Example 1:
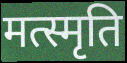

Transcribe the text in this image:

मत्स्मृति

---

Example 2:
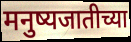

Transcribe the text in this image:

मनुष्यजातीच्या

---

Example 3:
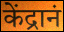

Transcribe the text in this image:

केंद्रानं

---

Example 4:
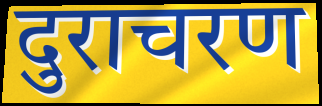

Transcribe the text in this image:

दुराचरण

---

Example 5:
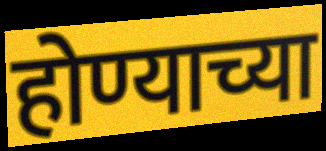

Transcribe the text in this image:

होण्‍याच्‍या